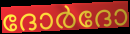
ദോർദോ